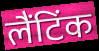
लैंटिंक